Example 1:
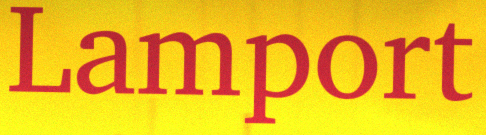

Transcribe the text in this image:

Lamport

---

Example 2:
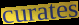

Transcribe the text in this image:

curates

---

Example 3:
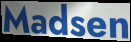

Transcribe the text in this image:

Madsen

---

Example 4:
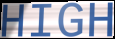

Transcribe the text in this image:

HIGH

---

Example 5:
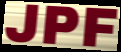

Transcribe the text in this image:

JPF